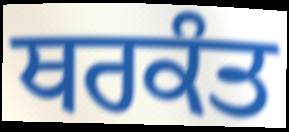
ਥਰਕੰਤ